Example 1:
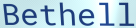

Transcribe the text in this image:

Bethell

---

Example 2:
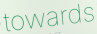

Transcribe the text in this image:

towards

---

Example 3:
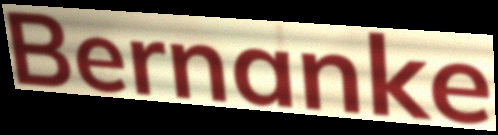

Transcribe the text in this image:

Bernanke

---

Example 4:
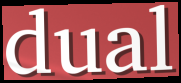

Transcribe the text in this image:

dual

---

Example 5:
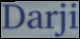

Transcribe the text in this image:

Darji